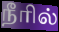
நீரில்